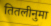
तितलीनुमा